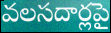
వలసదార్లపై